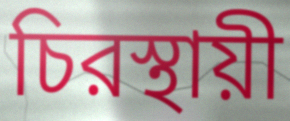
চিরস্থায়ী